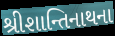
શ્રીશાન્તિનાથના